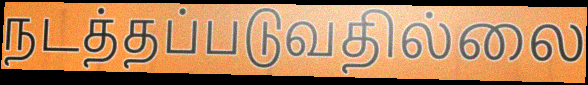
நடத்தப்படுவதில்லை